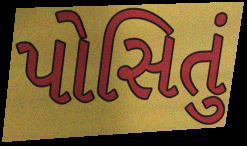
પોસિતું